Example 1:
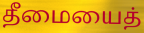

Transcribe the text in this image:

தீமையைத்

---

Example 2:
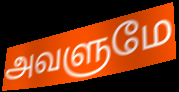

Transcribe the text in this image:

அவளுமே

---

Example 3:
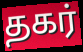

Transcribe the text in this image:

தகர்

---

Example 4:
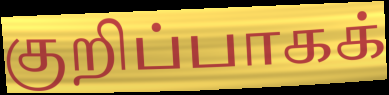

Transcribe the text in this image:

குறிப்பாகக்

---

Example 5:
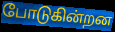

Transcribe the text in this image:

போடுகின்றன